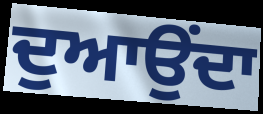
ਦੁਆਉਂਦਾ